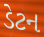
ડેટન